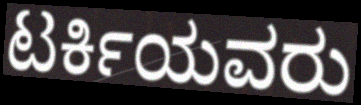
ಟರ್ಕಿಯವರು